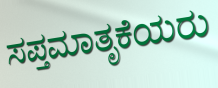
ಸಪ್ತಮಾತೃಕೆಯರು